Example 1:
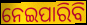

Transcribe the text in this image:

ନେଇପାରିବି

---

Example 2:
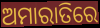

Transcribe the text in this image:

ଅମାରାତିରେ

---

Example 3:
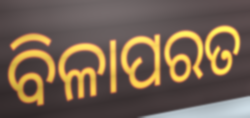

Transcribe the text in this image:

ବିଳାପରତ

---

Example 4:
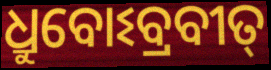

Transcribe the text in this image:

ଧ୍ରୁବୋଽବ୍ରବୀତ୍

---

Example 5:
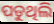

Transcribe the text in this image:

ପଡୁଥିଲି